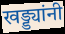
खड्ड्यांनी